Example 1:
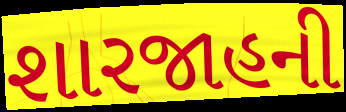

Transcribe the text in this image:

શારજાહની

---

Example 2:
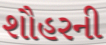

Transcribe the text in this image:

શૌહરની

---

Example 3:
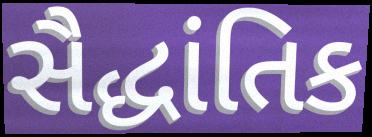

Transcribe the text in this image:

સૈદ્ધાંતિક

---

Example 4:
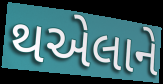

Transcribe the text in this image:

થએલાને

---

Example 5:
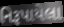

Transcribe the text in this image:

નિરૂપાયેલા